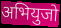
अभियुजो